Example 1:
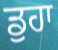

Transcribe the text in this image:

ਡੁਹਾ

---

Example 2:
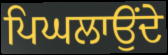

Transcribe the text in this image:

ਪਿਘਲਾਉਂਦੇ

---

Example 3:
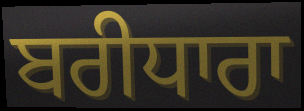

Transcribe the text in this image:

ਬਰੀਧਾਰਾ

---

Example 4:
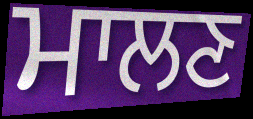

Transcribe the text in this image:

ਮਾਲਣ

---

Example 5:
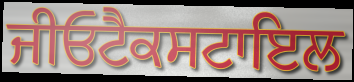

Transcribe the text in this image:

ਜੀਓਟੈਕਸਟਾਇਲ